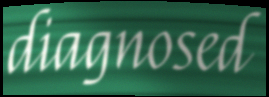
diagnosed